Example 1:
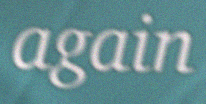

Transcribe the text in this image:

again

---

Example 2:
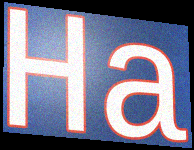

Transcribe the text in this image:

Ha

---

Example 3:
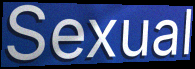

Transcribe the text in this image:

Sexual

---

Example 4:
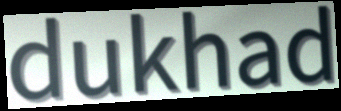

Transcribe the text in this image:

dukhad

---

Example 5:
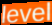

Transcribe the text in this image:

level